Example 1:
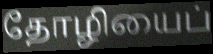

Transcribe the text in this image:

தோழியைப்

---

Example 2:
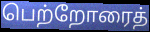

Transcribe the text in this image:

பெற்றோரைத்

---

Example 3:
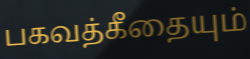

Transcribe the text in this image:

பகவத்கீதையும்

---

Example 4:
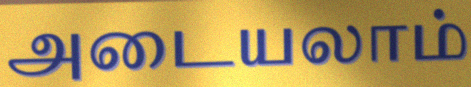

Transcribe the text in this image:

அடையலாம்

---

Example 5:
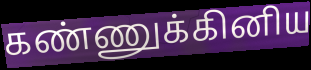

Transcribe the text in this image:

கண்ணுக்கினிய